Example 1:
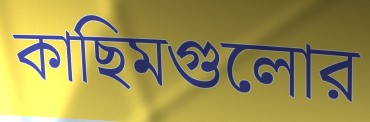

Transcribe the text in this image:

কাছিমগুলোর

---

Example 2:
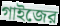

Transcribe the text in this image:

গাইজের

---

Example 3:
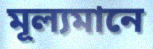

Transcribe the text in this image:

মূল্যমানে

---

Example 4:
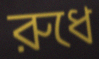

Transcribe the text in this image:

রুধে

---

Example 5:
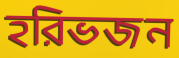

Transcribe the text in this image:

হরিভজন